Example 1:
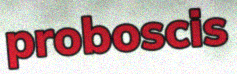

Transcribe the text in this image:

proboscis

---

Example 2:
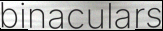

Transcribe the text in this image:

binaculars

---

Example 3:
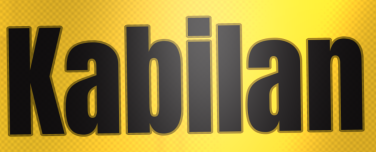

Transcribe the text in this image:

Kabilan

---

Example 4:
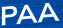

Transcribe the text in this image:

PAA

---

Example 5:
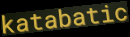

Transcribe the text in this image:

katabatic